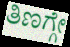
ತಿಣಗ್ಗೇ